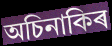
অচিনাকিৰ